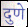
दुणे